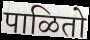
पाळितो